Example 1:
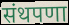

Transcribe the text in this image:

संथपणा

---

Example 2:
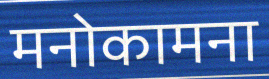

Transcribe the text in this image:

मनोकामना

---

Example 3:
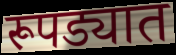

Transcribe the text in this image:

रूपड्यात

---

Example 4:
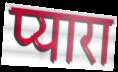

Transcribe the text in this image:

प्यारा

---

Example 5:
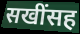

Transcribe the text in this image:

सखींसह